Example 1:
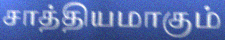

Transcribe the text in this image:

சாத்தியமாகும்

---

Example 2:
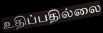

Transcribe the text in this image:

உதிப்பதில்லை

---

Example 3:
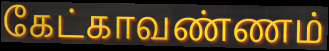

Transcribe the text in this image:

கேட்காவண்ணம்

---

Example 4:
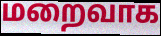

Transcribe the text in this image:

மறைவாக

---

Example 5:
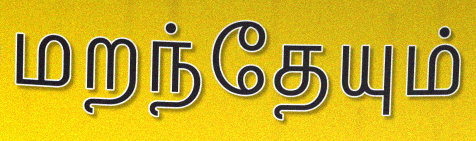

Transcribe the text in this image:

மறந்தேயும்